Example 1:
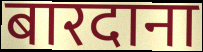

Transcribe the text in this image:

बारदाना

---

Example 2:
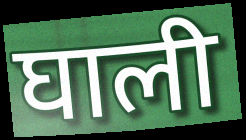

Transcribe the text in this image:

घाली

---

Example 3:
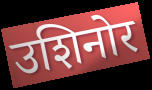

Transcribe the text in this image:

उशिनोर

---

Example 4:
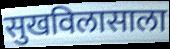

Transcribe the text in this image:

सुखविलासाला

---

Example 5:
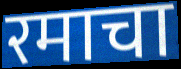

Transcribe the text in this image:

रमाचा